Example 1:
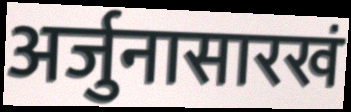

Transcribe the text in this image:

अर्जुनासारखं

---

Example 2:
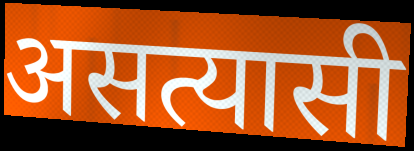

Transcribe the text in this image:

असत्यासी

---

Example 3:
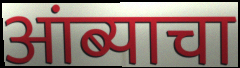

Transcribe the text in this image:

आंब्याचा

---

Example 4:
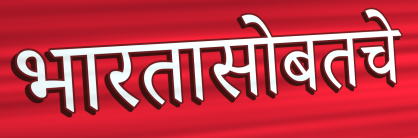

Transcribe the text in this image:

भारतासोबतचे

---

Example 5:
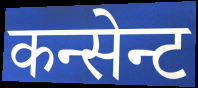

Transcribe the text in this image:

कन्सेन्ट